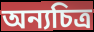
অন্যচিত্র